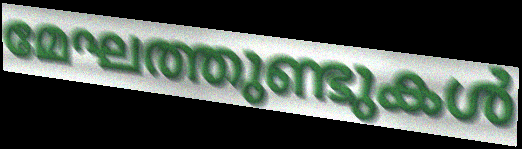
മേഘത്തുണ്ടുകൾ